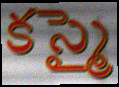
కస్మై